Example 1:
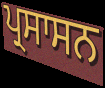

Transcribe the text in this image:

ਪ੍ਰਸਾਸਨ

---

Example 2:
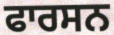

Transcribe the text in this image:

ਫਾਰਸਨ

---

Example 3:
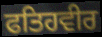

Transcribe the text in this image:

ਫਤਿਹਵੀਰ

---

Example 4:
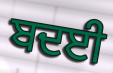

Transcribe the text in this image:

ਬਦਈ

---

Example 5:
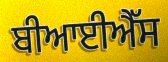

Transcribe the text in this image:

ਬੀਆਈਐੱਸ